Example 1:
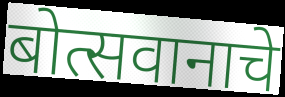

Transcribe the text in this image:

बोत्सवानाचे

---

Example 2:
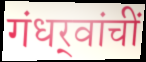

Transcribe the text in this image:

गंधर्वांचीं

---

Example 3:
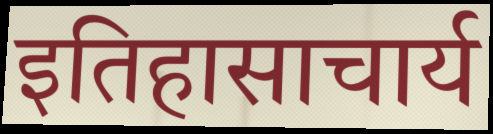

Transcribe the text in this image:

इतिहासाचार्य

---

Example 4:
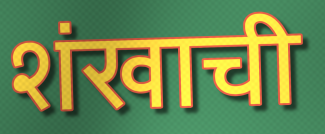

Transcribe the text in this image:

शंखाची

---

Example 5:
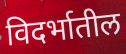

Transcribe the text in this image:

विदर्भातील